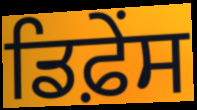
ਡਿਫ਼ੇਂਸ